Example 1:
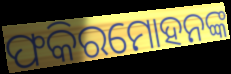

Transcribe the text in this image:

ଫକିରମୋହନଙ୍କ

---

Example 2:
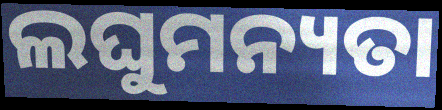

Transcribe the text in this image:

ଲଘୁମନ୍ୟତା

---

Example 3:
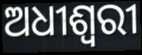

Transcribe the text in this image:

ଅଧୀଶ୍ୱରୀ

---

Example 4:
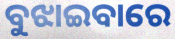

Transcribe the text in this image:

ବୁଝାଇବାରେ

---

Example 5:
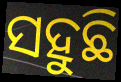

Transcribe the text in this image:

ସହୁଛି